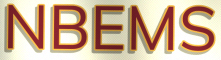
NBEMS